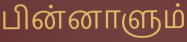
பின்னாளும்